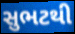
સુભટથી